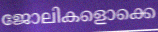
ജോലികളൊക്കെ